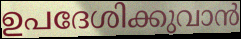
ഉപദേശിക്കുവാൻ